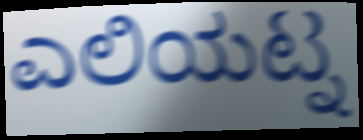
ಎಲಿಯಟ್ನ